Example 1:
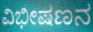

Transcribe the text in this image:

ವಿಭೀಷಣನ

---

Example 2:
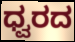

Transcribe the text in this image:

ಧ್ವರದ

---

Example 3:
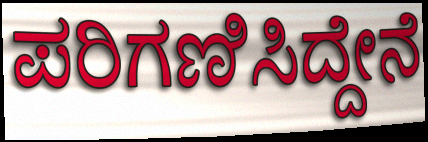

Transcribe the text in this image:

ಪರಿಗಣಿಸಿದ್ದೇನೆ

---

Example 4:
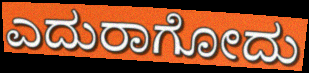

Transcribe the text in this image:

ಎದುರಾಗೋದು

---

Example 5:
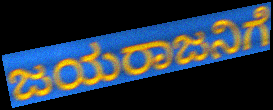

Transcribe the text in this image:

ಜಯರಾಜನಿಗೆ